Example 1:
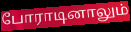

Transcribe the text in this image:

போராடினாலும்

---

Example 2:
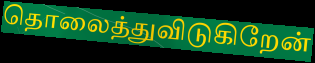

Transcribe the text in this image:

தொலைத்துவிடுகிறேன்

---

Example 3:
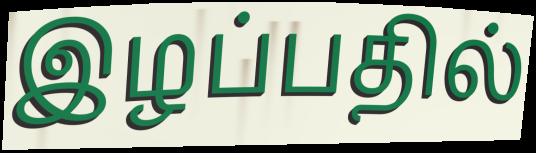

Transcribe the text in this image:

இழப்பதில்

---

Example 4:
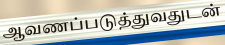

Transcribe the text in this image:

ஆவணப்படுத்துவதுடன்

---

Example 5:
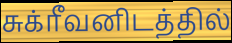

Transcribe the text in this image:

சுக்ரீவனிடத்தில்